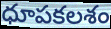
ధూపకలశం